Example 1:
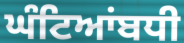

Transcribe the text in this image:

ਘੰਟਿਆਂਬਧੀ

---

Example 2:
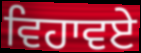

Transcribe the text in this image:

ਵਿਹਾਵਏ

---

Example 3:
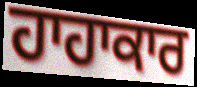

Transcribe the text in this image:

ਹਾਹਾਕਾਰ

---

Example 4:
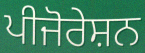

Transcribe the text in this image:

ਪੀਜੋਰੇਸ਼ਨ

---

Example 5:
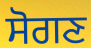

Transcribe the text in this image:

ਸੋਗਣ